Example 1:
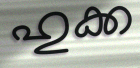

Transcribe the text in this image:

ഹുക്ക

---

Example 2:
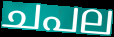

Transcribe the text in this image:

ചപല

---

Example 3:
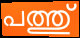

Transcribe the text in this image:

പത്തു്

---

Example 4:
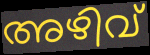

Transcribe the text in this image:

അഴിവ്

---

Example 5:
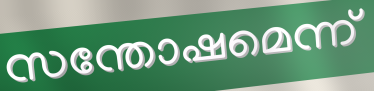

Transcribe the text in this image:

സന്തോഷമെന്ന്